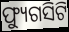
ଫ୍ୟୁଗସିଟି